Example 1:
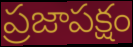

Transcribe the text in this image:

ప్రజాపక్షం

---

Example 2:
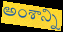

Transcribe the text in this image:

అంశాన్ని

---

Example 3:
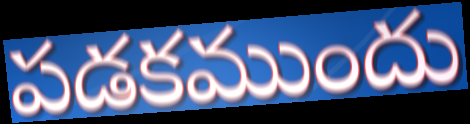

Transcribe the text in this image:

పడకముందు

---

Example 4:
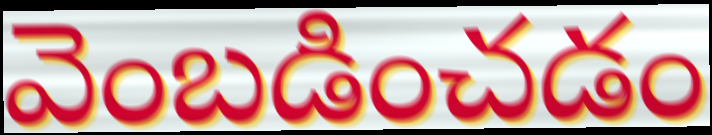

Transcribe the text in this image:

వెంబడించడం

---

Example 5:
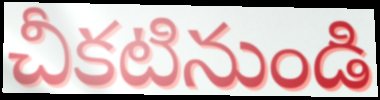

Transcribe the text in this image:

చీకటినుండి